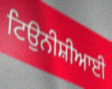
ਟਿਉਨੀਸ਼ੀਆਈ